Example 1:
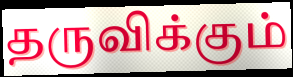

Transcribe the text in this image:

தருவிக்கும்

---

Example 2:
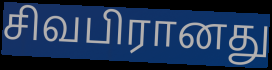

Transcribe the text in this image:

சிவபிரானது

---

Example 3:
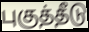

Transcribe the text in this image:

புகுத்தீடு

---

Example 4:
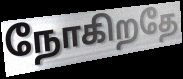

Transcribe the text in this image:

நோகிறதே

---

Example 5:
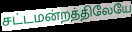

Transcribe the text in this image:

சட்டமன்றத்திலேயே